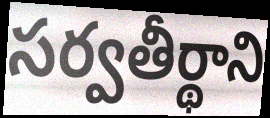
సర్వతీర్థాని